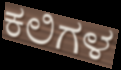
ಕಲಿಗಳ